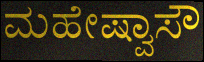
ಮಹೇಷ್ವಾಸೌ